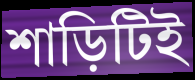
শাড়িটিই